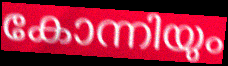
കോന്നിയും